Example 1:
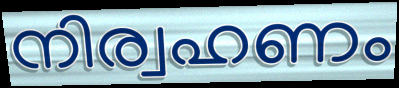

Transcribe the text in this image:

നിര്വഹണം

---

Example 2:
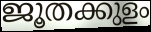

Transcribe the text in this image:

ജൂതക്കുളം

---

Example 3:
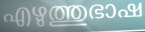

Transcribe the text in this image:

എഴുത്തുഭാഷ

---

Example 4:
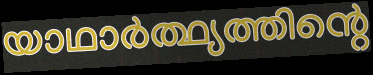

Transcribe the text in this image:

യാഥാർത്ഥ്യത്തിന്റെ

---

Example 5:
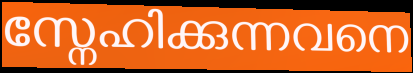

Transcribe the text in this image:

സ്നേഹിക്കുന്നവനെ